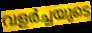
വളർച്ചയുടെ